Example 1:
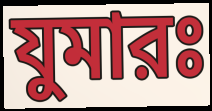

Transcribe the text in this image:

যুমারঃ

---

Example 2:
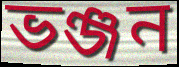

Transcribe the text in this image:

ভঞ্জন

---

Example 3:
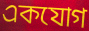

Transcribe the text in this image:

একযোগ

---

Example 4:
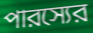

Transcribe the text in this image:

পারস্যের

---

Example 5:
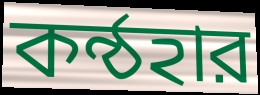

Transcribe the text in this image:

কন্ঠহার